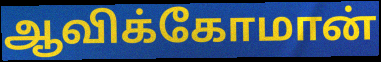
ஆவிக்கோமான்